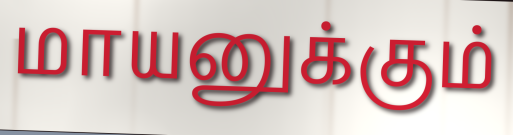
மாயனுக்கும்